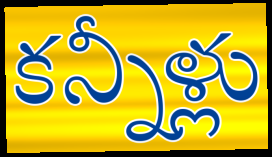
కన్నీళ్లు